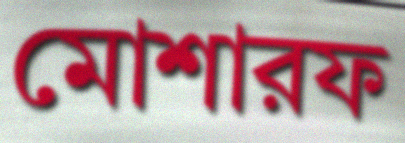
মোশারফ